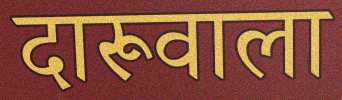
दारूवाला